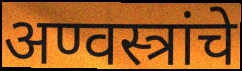
अण्वस्त्रांचे